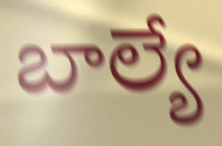
బాల్యే